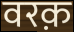
वरक़